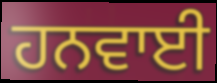
ਹਨਵਾਈ